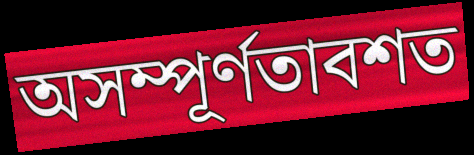
অসম্পূর্ণতাবশত